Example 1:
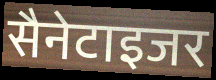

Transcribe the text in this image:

सैनेटाइजर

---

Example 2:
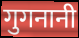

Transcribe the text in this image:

गुगनानी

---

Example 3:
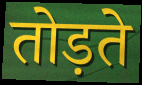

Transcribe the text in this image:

तोड़ते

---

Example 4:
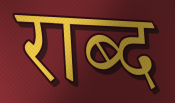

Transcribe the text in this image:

राब्द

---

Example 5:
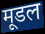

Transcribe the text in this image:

मूडल